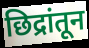
छिद्रांतून